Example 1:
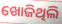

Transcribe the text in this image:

ଖୋଜିଥିଲି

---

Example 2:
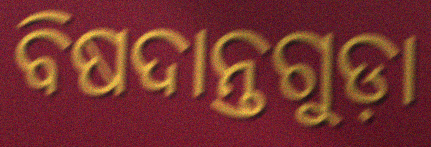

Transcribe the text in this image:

ବିଷଦାନ୍ତଗୁଡ଼ା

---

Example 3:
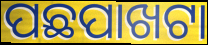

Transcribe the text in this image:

ପଛପାଖଟା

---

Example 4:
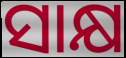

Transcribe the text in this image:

ସାକ୍ଷ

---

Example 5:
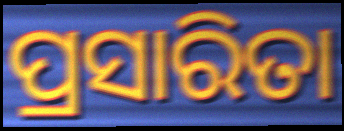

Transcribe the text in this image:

ପ୍ରସାରିତା